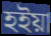
হইয়া